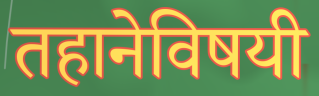
तहानेविषयी